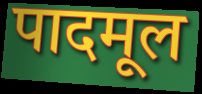
पादमूल